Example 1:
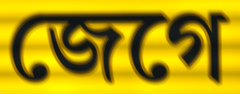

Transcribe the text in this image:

জেগে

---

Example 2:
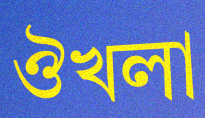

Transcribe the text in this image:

ঔখলা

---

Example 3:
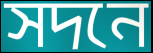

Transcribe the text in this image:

সদনে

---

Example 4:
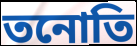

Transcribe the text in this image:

তনোতি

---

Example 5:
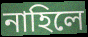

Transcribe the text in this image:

নাহিলে